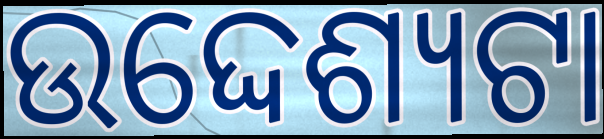
ଉଦ୍ଦେଶ୍ୟଟା